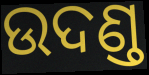
ଉଦଣ୍ଡ